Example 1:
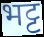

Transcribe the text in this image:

भट्ट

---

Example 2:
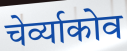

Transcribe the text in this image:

चेर्व्याकोव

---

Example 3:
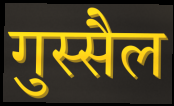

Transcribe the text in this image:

गुस्सैल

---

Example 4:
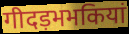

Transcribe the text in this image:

गीदड़भभकियां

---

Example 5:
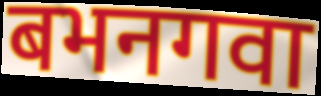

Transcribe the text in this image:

बभनगवा